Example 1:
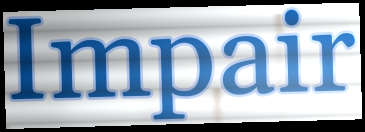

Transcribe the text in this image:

Impair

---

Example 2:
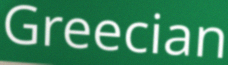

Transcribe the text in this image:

Greecian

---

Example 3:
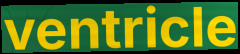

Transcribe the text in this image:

ventricle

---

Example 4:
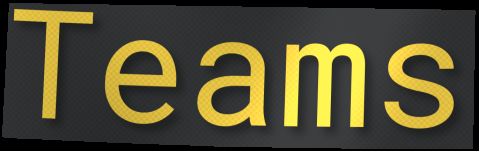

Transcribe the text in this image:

Teams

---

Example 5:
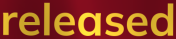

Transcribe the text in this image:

released